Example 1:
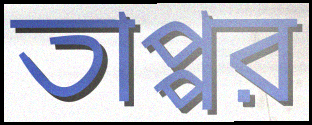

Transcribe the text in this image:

তাপ্পর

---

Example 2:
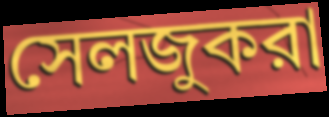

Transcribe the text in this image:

সেলজুকরা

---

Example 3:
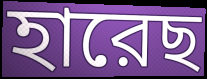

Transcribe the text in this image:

হারেছ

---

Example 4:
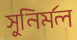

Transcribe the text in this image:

সুনির্মল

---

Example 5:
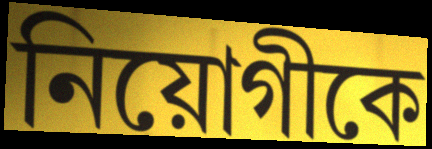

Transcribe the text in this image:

নিয়োগীকে